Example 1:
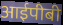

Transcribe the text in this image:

आईपीबी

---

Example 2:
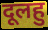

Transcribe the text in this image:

दूलहु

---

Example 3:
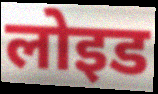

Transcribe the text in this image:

लोइड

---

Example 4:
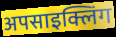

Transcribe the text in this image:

अपसाइक्लिंग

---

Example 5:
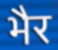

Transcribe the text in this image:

भैर